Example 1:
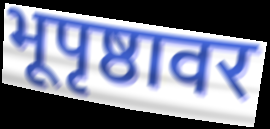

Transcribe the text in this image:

भूपृष्ठावर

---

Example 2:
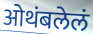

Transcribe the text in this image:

ओथंबलेलं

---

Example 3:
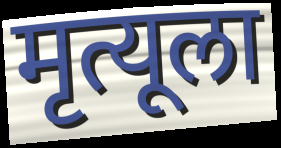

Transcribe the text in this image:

मृत्यूला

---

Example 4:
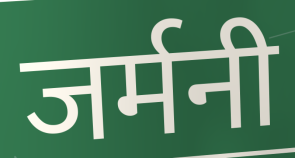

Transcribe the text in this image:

जर्मनी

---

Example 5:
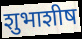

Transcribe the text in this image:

शुभाशीष